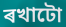
ৰখাটো